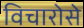
विचारोसे